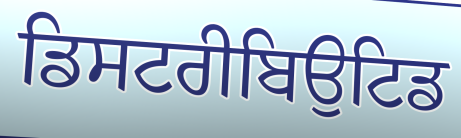
ਡਿਸਟਰੀਬਿਉਟਿਡ